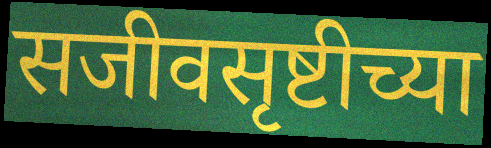
सजीवसृष्टीच्या